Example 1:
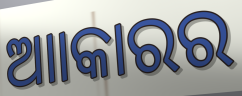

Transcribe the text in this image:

ଆାକାରର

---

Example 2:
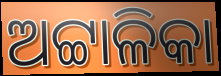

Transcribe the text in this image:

ଅଟ୍ଟାଳିକା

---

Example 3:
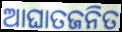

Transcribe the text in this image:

ଆଘାତଜନିତ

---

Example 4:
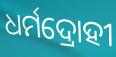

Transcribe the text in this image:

ଧର୍ମଦ୍ରୋହୀ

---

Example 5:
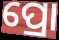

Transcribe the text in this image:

ପ୍ରୋ